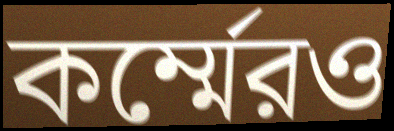
কর্ম্মেরও